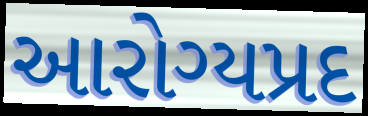
આરોગ્યપ્રદ